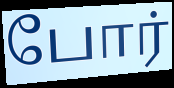
போர்